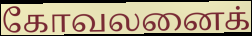
கோவலனைக்